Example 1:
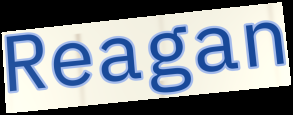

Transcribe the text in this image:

Reagan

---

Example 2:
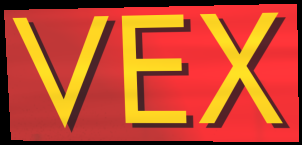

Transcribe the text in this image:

VEX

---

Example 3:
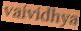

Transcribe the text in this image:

vaividhya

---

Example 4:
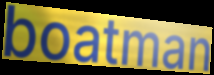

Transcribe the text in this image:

boatman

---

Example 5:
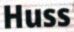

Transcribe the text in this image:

Huss